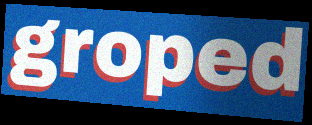
groped